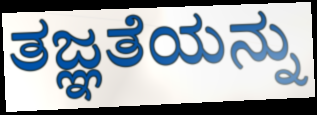
ತಜ್ಞತೆಯನ್ನು